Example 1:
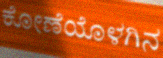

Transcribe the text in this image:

ಕೋಣೆಯೊಳಗಿನ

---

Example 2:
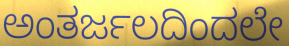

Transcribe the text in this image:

ಅಂತರ್ಜಲದಿಂದಲೇ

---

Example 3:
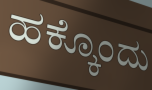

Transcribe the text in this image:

ಹಕ್ಕೊಂದು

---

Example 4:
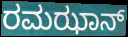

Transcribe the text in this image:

ರಮಝಾನ್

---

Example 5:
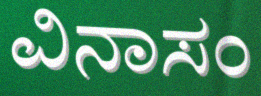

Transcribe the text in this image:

ವಿನಾಸಂ